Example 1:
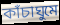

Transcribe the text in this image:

কাঁচাঘুমে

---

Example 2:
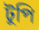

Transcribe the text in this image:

টুপি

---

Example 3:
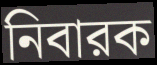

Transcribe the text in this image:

নিবারক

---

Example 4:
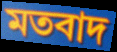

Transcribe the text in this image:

মতবাদ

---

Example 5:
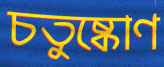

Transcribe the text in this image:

চতুষ্কোণ